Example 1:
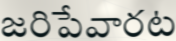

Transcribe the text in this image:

జరిపేవారట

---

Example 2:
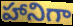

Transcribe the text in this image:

హానిగా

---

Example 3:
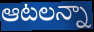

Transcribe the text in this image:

ఆటలన్నా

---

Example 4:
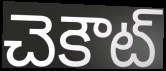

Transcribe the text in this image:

చెకౌట్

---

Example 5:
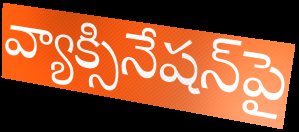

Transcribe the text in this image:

వ్యాక్సినేషన్‌పై